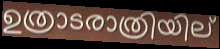
ഉത്രാടരാത്രിയില്